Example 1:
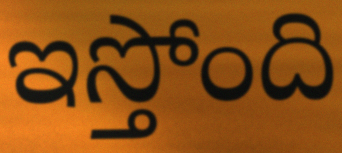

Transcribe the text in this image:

ఇస్తోంది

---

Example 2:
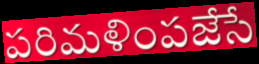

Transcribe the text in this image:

పరిమళింపజేసే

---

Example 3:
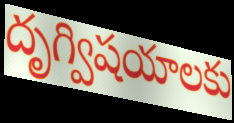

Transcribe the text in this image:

దృగ్విషయాలకు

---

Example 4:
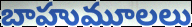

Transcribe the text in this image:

బాహుమూలలు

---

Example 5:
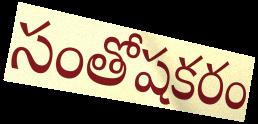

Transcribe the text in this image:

సంతోషకరం